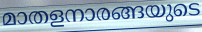
മാതളനാരങ്ങയുടെ